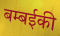
बम्बईकी